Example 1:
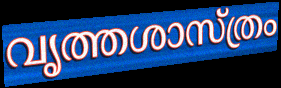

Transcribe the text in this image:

വൃത്തശാസ്ത്രം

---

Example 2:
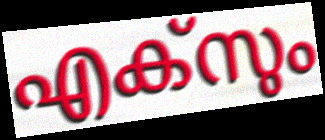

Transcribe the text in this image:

എക്‌സും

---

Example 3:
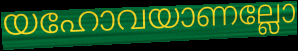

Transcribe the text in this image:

യഹോവയാണല്ലോ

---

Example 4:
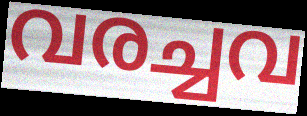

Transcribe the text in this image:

വരച്ചവ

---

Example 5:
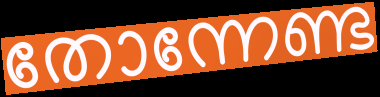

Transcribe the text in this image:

തോന്നേണ്ട